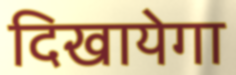
दिखायेगा